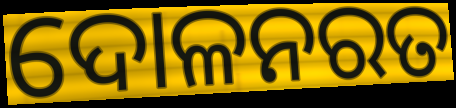
ଦୋଳନରତ